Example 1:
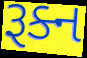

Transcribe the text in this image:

રૂક્ન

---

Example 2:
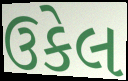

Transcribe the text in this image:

ઉકેલ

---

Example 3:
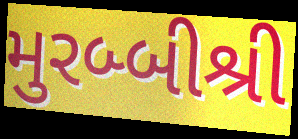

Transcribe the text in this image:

મુરબ્બીશ્રી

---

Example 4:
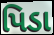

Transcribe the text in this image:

પિડા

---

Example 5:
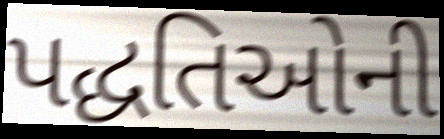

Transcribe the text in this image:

પદ્ધતિઓની